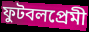
ফুটবলপ্রেমী